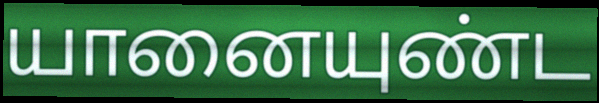
யானையுண்ட